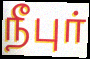
நீபுர்